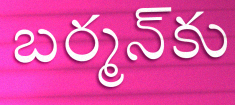
బర్మన్‌కు